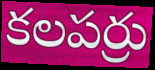
కలపర్రు